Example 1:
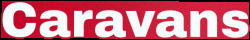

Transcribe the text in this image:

Caravans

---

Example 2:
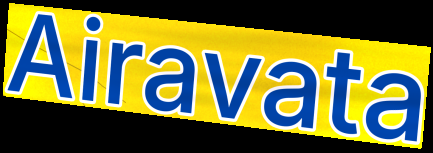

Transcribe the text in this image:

Airavata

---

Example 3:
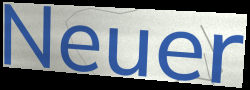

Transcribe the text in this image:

Neuer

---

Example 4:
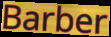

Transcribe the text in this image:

Barber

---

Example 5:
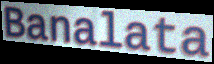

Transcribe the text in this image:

Banalata